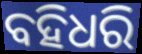
ବହିଧରି